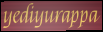
yediyurappa